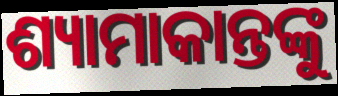
ଶ୍ୟାମାକାନ୍ତଙ୍କୁ